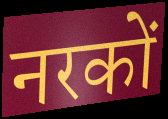
नरकों